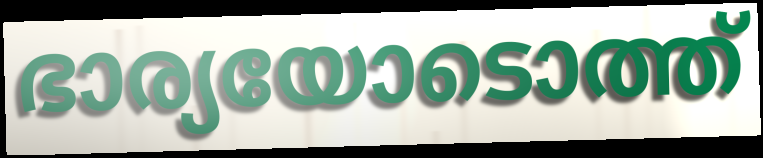
ഭാര്യയോടൊത്ത്